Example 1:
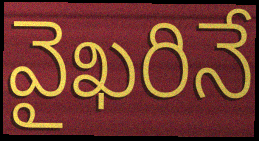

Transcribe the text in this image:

వైఖరినే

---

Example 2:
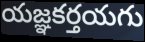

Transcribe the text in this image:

యజ్ఞకర్తయగు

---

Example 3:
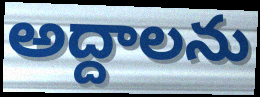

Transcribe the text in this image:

అద్దాలను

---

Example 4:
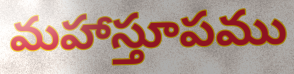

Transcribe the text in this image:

మహాస్తూపము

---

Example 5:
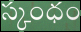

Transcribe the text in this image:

స్కంధం